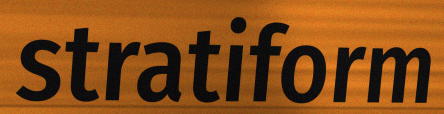
stratiform